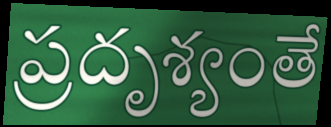
ప్రదృశ్యంతే